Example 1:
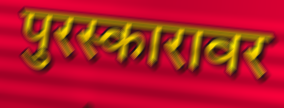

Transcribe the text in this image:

पुरस्कारावर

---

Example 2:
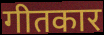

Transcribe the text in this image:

गीतकार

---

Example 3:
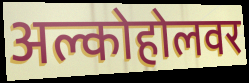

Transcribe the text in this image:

अल्कोहोलवर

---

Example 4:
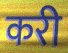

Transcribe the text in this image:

करी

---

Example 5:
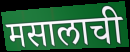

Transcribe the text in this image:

मसालाची